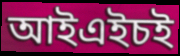
আইএইচই